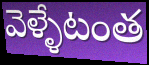
వెళ్ళేటంత